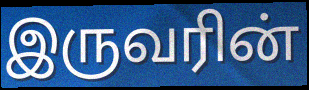
இருவரின்